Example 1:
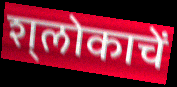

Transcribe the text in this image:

श्लोकाचें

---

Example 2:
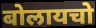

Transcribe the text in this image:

बोलायचो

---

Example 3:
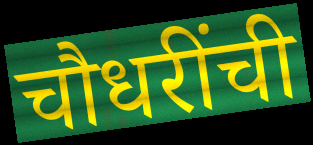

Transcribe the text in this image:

चौधरींची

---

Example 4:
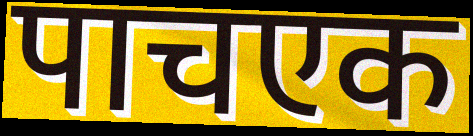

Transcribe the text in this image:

पाचएक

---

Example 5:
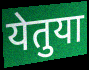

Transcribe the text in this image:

येतुया